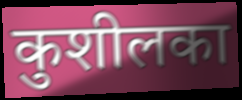
कुशीलका